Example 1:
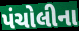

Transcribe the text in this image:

પંચોલીના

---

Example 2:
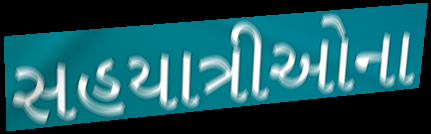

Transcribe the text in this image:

સહયાત્રીઓના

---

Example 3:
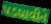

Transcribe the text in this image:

પડઘાવીને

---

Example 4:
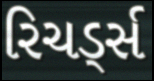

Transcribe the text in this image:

રિચર્ડ્સ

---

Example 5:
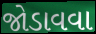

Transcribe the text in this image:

જોડાવવા